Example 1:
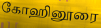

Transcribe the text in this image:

கோஹினூரை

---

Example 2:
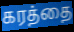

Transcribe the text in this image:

கரத்தை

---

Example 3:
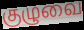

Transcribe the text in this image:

குழுவை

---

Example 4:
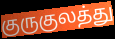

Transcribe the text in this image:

குருகுலத்து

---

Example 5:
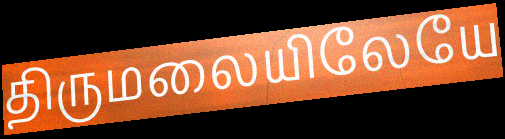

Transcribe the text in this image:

திருமலையிலேயே